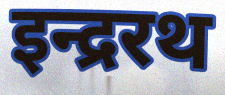
इन्द्ररथ